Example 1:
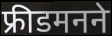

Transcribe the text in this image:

फ्रीडमनने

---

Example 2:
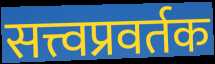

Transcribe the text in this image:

सत्त्वप्रवर्तक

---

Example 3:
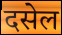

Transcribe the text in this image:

दसेल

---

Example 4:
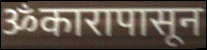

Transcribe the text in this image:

ॐकारापासून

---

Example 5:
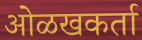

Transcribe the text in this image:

ओळखकर्ता